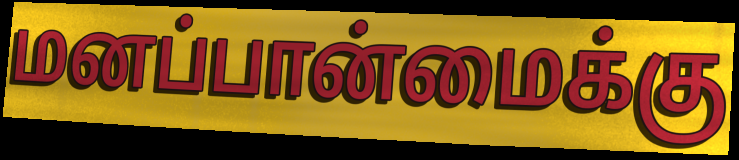
மனப்பான்மைக்கு